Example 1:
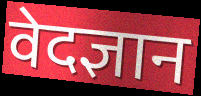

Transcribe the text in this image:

वेदज्ञान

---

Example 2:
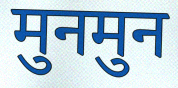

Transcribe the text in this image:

मुनमुन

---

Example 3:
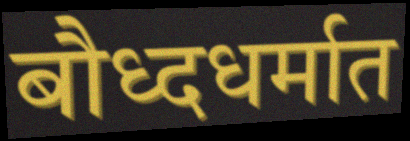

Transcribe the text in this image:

बौध्दधर्मात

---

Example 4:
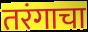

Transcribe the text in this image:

तरंगाचा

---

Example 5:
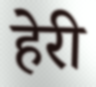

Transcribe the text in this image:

हेरी